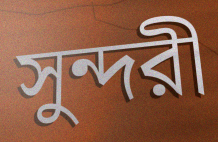
সুন্দরী